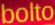
bolto